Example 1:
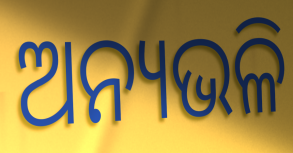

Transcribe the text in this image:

ଅନ୍ୟଭଳି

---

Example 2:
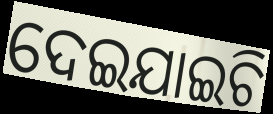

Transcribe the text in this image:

ଦେଇଯାଇଚି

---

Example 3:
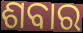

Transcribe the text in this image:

ଶବାର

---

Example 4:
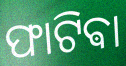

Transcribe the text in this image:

ଫାଟିଵା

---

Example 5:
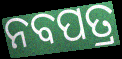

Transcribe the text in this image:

ନବପତ୍ର